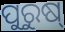
ପୁରୁଷ୍